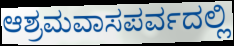
ಆಶ್ರಮವಾಸಪರ್ವದಲ್ಲಿ